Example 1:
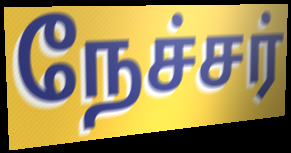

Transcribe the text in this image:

நேச்சர்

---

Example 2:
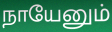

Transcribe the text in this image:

நாயேனும்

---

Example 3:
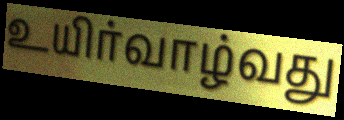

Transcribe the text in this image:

உயிர்வாழ்வது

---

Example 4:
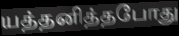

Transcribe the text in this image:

யத்தனித்தபோது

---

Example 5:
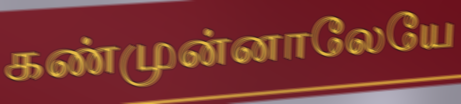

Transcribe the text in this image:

கண்முன்னாலேயே